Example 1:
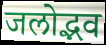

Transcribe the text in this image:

जलोद्भव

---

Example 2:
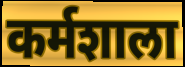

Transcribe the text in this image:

कर्मशाला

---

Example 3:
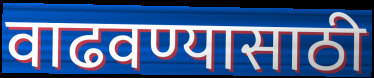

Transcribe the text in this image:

वाढवण्यासाठी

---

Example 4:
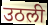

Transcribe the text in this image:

उठली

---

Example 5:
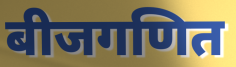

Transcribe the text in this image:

बीजगणित